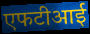
एफटीआई